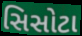
સિસોટા